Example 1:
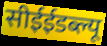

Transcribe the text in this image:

सीईईडब्ल्यू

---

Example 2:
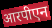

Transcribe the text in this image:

आरपीएन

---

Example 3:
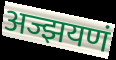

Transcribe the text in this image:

अज्झयणं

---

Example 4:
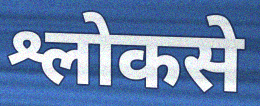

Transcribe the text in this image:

श्लोकसे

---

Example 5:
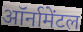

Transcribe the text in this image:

ऑर्नामेंटल